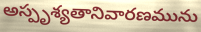
అస్పృశ్యతానివారణమును